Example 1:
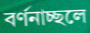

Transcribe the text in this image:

বর্ণনাচ্ছলে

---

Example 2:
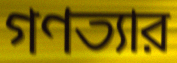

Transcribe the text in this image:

গণত্যার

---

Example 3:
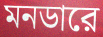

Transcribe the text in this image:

মনডারে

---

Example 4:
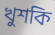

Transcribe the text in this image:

খুশকি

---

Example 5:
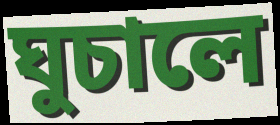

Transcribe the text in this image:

ঘুচালে